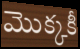
మొక్కకీ